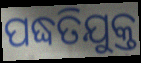
ପଦ୍ଧତିଯୁକ୍ତ